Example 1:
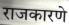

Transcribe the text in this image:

राजकारणे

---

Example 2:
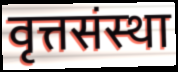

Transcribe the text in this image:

वृत्तसंस्था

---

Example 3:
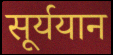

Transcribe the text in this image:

सूर्ययान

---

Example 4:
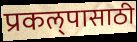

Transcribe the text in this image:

प्रकल्पासाठी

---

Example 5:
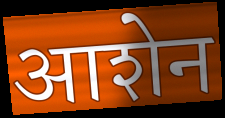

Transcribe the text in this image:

आशेन